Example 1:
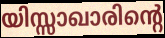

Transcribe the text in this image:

യിസ്സാഖാരിന്റെ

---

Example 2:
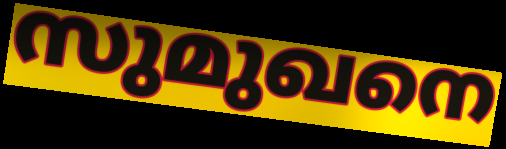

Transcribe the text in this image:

സുമുഖനെ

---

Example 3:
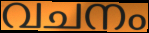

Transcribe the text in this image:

വചനം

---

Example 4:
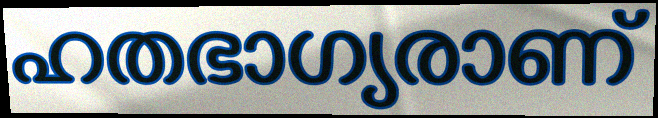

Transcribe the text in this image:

ഹതഭാഗ്യരാണ്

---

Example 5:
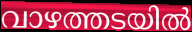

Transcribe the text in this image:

വാഴത്തടയിൽ